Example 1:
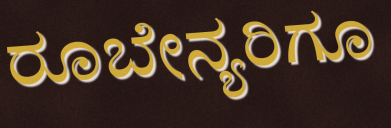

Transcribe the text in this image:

ರೂಬೇನ್ಯರಿಗೂ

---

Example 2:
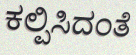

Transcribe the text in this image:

ಕಲ್ಪಿಸಿದಂತೆ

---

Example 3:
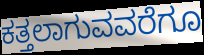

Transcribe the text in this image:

ಕತ್ತಲಾಗುವವರೆಗೂ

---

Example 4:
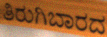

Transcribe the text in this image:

ತಿರುಗಿಬಾರದ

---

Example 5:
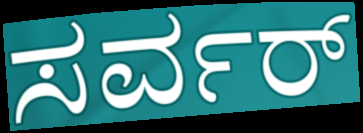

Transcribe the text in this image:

ಸರ್ವರ್